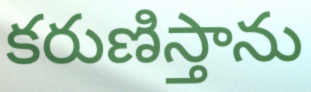
కరుణిస్తాను